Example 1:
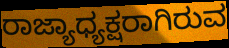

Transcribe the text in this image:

ರಾಜ್ಯಾಧ್ಯಕ್ಷರಾಗಿರುವ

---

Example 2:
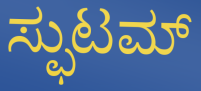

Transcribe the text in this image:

ಸ್ಫುಟಮ್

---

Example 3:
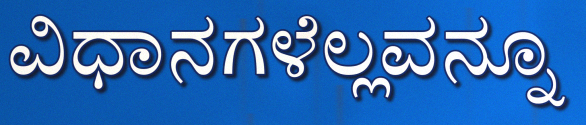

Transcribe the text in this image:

ವಿಧಾನಗಳೆಲ್ಲವನ್ನೂ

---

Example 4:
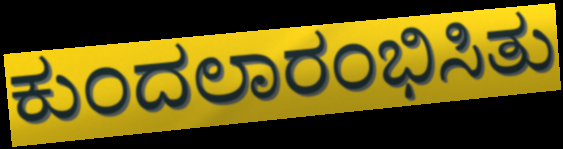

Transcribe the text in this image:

ಕುಂದಲಾರಂಭಿಸಿತು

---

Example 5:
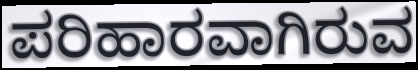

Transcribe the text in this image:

ಪರಿಹಾರವಾಗಿರುವ